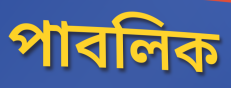
পাবলিক